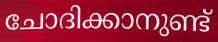
ചോദിക്കാനുണ്ട്